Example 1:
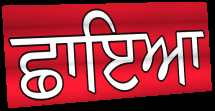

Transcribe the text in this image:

ਛਾਇਆ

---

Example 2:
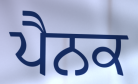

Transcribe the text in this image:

ਪੈਨਕ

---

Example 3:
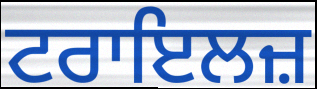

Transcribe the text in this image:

ਟਰਾਇਲਜ਼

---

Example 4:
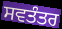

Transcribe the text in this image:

ਸਵਤੰਤਰ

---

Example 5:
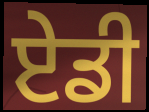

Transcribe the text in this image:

ਏਡੀ